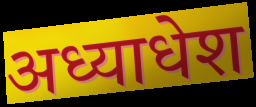
अध्याधेश